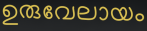
ഉരുവേലായം